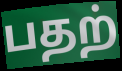
பதற்